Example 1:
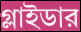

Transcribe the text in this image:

গ্লাইডার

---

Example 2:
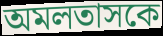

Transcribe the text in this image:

অমলতাসকে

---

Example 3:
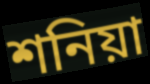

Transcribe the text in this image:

শনিয়া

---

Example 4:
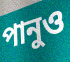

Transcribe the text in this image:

পানুও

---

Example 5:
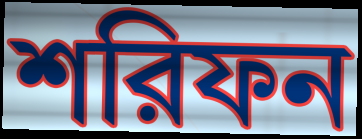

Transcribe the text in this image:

শরিফন